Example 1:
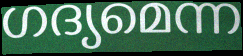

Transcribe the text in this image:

ഗദ്യമെന്ന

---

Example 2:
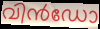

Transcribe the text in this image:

വിൻഡോ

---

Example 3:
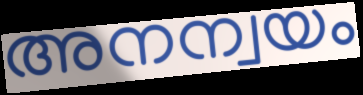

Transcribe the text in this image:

അനന്വയം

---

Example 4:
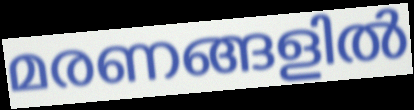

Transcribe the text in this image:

മരണങ്ങളിൽ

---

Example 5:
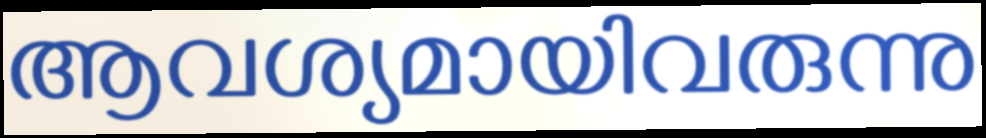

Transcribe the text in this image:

ആവശ്യമായിവരുന്നു